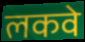
लकवे